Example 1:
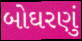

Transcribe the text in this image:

બોઘરણું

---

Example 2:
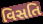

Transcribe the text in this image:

વિસતિ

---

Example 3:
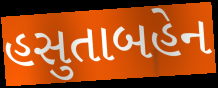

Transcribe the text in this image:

હસુતાબહેન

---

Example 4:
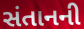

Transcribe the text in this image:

સંતાનની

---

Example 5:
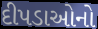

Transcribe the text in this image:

દીપડાઓનો